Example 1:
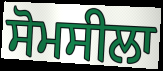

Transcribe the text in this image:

ਸੋਮਸੀਲਾ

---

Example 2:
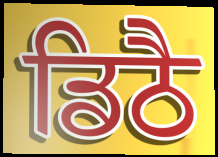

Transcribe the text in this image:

ਡਿਠੈ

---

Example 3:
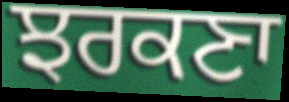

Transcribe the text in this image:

ਝਰਕਣਾ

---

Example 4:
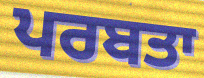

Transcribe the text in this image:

ਪਰਬਤਾ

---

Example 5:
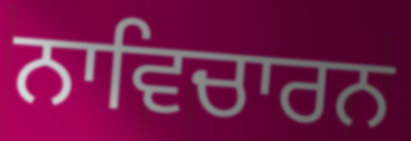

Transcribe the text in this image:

ਨਾਵਿਚਾਰਨ